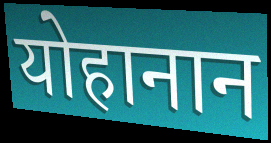
योहानान